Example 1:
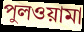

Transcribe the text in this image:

পুলওয়ামা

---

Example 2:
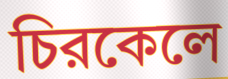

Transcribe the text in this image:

চিরকেলে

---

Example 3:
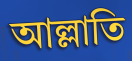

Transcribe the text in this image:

আল্লাতি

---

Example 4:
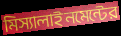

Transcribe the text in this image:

মিস্যালাইনমেন্টের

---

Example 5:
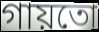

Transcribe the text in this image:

গায়তো